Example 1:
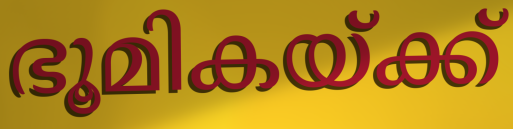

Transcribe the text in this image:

ഭൂമികയ്ക്ക്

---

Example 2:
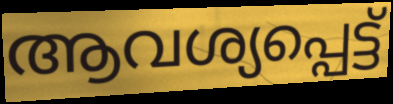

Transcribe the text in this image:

ആവശ്യപ്പെട്ട്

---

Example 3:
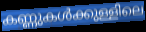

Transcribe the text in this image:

കണ്ണുകൾക്കുള്ളിലെ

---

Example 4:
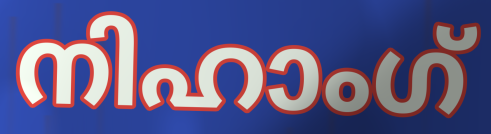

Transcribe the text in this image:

നിഹാംഗ്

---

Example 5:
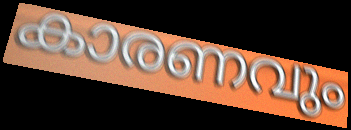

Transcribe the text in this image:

കാരണവും